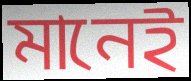
মানেই